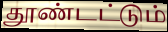
தூண்டட்டும்